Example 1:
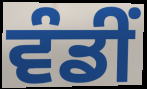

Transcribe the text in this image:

ਵੰਡੀਂ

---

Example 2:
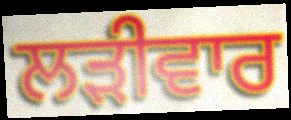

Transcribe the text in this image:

ਲੜੀਵਾਰ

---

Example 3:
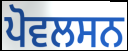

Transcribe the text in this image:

ਪੋਵਲਸਨ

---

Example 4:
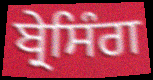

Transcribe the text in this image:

ਬ੍ਰੇਸਿੰਗ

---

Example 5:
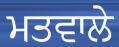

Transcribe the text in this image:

ਮਤਵਾਲੇ